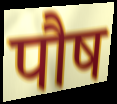
पौष